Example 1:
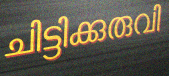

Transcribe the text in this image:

ചിട്ടിക്കുരുവി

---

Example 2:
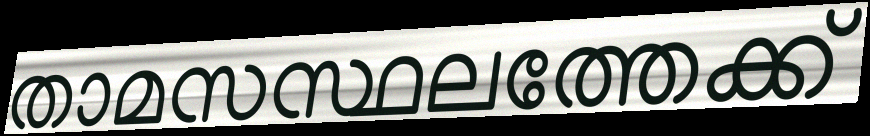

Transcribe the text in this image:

താമസസ്ഥലത്തേക്ക്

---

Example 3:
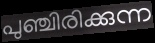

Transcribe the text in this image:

പുഞ്ചിരിക്കുന്ന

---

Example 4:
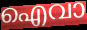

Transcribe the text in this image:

ഐവാ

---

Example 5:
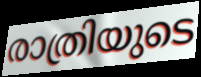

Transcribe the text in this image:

രാത്രിയുടെ